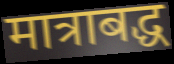
मात्राबद्ध